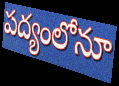
పద్యంలోనూ